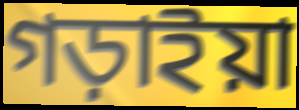
গড়াইয়া